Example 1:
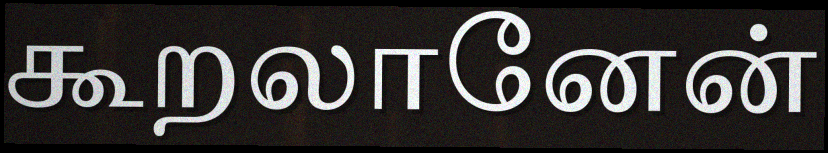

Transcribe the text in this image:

கூறலானேன்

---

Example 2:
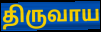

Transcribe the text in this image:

திருவாய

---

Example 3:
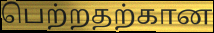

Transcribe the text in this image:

பெற்றதற்கான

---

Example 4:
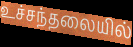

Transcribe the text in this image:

உச்சந்தலையில்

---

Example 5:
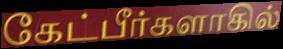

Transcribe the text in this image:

கேட்பீர்களாகில்